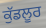
ਕੁੱਡਲੂਰ